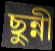
ছুন্নী